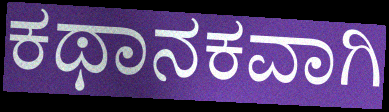
ಕಥಾನಕವಾಗಿ